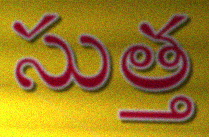
సుత్త